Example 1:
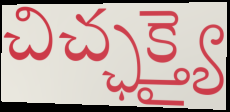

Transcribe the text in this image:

చిచ్ఛక్త్యై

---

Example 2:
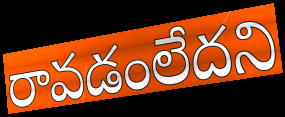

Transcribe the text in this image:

రావడంలేదని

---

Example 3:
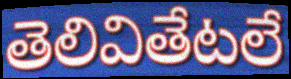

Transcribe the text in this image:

తెలివితేటలే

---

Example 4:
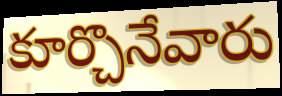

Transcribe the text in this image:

కూర్చొనేవారు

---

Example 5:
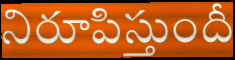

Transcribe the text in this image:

నిరూపిస్తుందీ